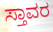
ಸ್ತಾವರ